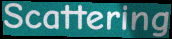
Scattering